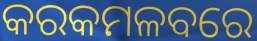
କରକମଳବରେ